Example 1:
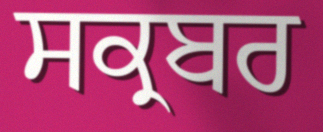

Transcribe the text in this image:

ਸਕ੍ਰਬਰ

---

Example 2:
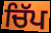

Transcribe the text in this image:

ਚਿੱਪ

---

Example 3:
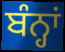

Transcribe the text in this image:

ਬੰਨ੍ਹਾਂ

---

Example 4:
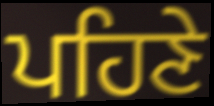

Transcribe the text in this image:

ਪਹਿਣੇ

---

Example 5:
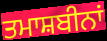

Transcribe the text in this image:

ਤਮਾਸ਼ਬੀਨਾਂ